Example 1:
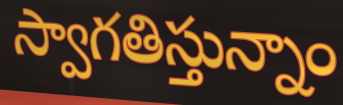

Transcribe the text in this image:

స్వాగతిస్తున్నాం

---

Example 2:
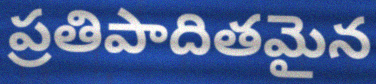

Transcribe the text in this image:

ప్రతిపాదితమైన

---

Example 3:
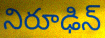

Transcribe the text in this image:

నిరూఢిన్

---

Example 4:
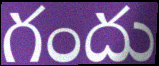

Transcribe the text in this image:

గందు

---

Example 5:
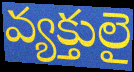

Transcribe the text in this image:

వ్యక్తులై